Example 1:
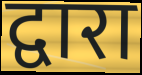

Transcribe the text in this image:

द्वारा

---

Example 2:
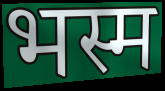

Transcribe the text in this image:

भस्म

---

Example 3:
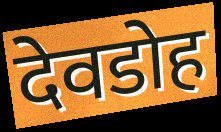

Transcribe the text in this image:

देवडोह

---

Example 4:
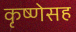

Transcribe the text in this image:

कृष्णेसह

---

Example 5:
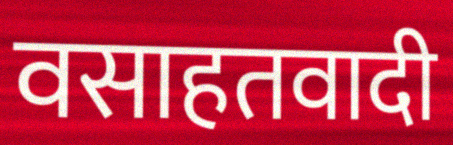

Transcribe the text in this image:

वसाहतवादी